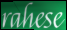
rahese